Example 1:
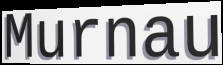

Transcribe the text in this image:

Murnau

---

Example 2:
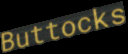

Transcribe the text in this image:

Buttocks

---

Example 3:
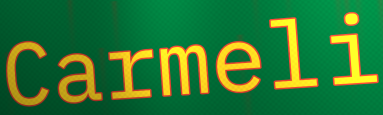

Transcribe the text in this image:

Carmeli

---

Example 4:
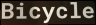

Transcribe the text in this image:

Bicycle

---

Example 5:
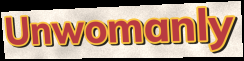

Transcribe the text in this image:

Unwomanly